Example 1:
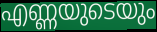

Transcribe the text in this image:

എണ്ണയുടെയും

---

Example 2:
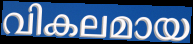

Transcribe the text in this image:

വികലമായ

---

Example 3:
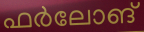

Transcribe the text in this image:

ഫർലോങ്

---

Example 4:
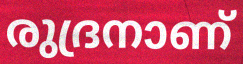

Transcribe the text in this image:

രുദ്രനാണ്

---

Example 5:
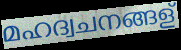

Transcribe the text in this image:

മഹദ്വചനങ്ങള്